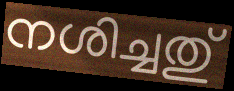
നശിച്ചതു്